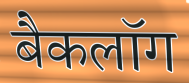
बैकलॉग